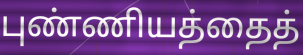
புண்ணியத்தைத்